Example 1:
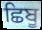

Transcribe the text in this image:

ਛਿਬੂ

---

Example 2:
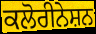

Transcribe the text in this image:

ਕਲੋਰੀਨੇਸ਼ਨ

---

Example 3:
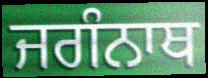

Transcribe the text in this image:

ਜਗੰਨਾਥ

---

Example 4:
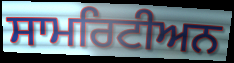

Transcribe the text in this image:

ਸਾਮਰਿਟੀਅਨ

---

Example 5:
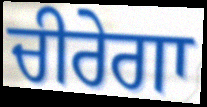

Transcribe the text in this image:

ਚੀਰੇਗਾ